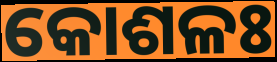
କୋଶଳଃ